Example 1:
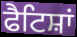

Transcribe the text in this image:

ਫੈਟਿਸ਼ਾਂ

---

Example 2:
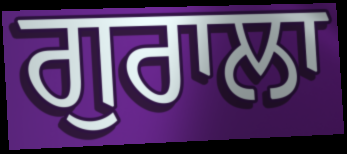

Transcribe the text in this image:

ਗੁਰਾਲਾ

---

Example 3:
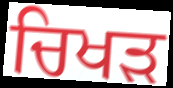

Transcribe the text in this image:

ਚਿਖੜ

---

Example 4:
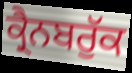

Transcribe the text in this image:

ਕ੍ਰੈਨਬਰੁੱਕ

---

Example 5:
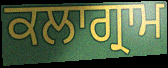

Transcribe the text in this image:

ਕਲਾਗ੍ਰਾਮ